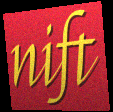
nift